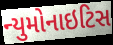
ન્યુમોનાઇટિસ